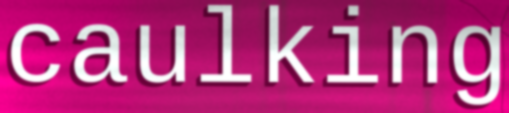
caulking